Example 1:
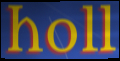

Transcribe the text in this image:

holl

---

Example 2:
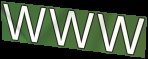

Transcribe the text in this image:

WWW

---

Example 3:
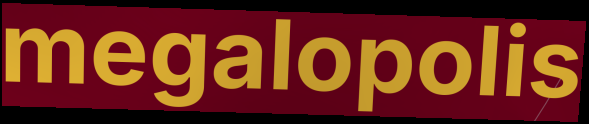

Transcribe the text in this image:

megalopolis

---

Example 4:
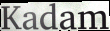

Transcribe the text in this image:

Kadam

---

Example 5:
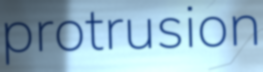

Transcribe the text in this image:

protrusion